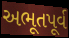
અભૂતપૂર્વ